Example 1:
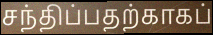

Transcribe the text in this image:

சந்திப்பதற்காகப்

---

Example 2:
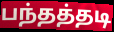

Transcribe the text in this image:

பந்தத்தடி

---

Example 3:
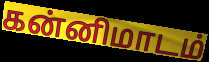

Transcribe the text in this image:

கன்னிமாடம்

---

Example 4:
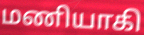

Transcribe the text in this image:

மணியாகி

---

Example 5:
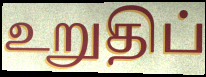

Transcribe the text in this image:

உறுதிப்